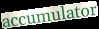
accumulator